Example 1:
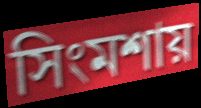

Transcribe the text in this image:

সিংমশায়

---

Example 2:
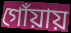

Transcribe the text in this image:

গোঁয়ায়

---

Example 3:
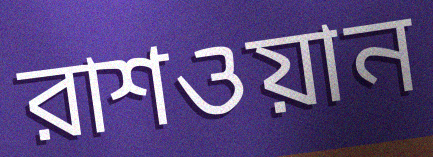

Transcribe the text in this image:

রাশওয়ান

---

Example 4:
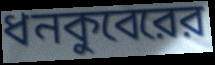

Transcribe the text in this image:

ধনকুবেরের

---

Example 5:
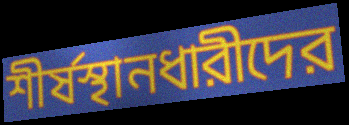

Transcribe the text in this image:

শীর্ষস্থানধারীদের